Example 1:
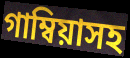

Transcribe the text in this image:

গাম্বিয়াসহ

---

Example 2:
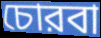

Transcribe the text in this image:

চোরবা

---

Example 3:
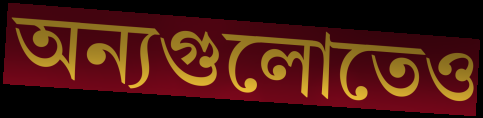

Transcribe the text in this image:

অন্যগুলোতেও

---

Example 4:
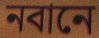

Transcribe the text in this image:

নবানে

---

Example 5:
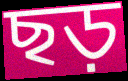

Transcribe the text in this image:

ছড়